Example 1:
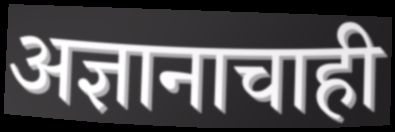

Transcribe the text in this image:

अज्ञानाचाही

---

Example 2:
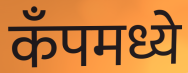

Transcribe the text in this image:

कॅंपमध्ये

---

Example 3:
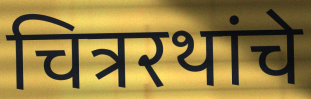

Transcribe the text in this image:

चित्ररथांचे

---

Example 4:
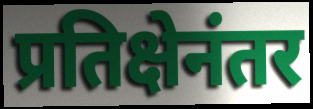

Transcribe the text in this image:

प्रतिक्षेनंतर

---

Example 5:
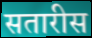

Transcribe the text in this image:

सतारीस